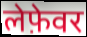
लेफ़ेवर